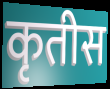
कृतीस